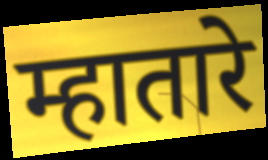
म्हातारे